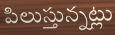
పిలుస్తున్నట్లు